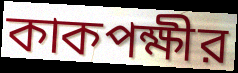
কাকপক্ষীর